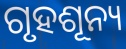
ଗୃହଶୂନ୍ୟ